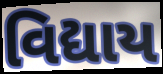
વિદ્યાય